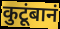
कुटूंबानं